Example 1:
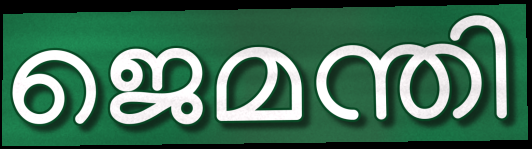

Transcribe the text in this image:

ജെമന്തി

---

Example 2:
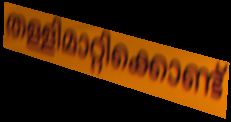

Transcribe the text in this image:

തള്ളിമാറ്റിക്കൊണ്ട്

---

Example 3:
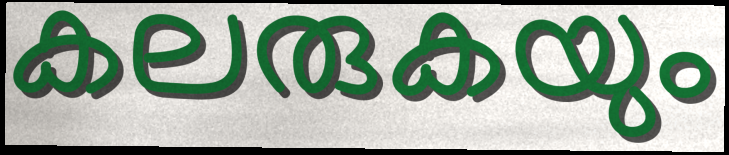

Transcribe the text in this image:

കലരുകയും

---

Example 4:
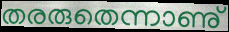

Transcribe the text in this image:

തരരുതെന്നാണു്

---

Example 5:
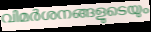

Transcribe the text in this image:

വിമർശനങ്ങളുടെയും